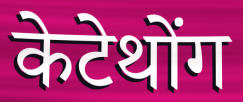
केटेथोंग